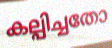
കല്പിച്ചതോ